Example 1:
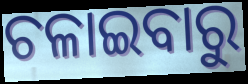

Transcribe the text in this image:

ଚଳାଇବାରୁ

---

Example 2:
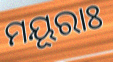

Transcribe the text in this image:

ମୟୂରାଃ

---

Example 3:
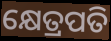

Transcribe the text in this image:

କ୍ଷେତ୍ରପତି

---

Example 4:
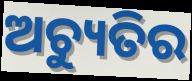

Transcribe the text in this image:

ଅଚ୍ୟୁତିର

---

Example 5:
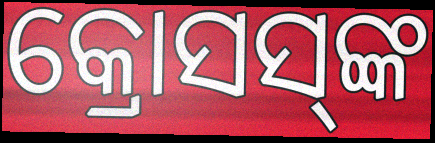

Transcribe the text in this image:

କ୍ରୋସସ୍‌ଙ୍କ